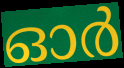
ഓർ